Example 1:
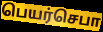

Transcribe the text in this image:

பெயர்செபா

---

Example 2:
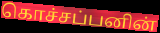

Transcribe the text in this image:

கொச்சப்பனின்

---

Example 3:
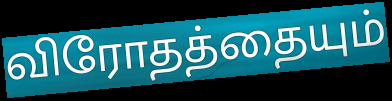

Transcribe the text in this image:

விரோதத்தையும்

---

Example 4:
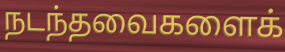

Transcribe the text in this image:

நடந்தவைகளைக்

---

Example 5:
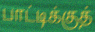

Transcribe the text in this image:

பாட்டிக்குத்